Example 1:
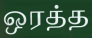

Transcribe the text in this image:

ஒரத்த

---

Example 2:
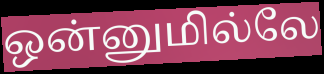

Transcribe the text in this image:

ஒன்னுமில்லே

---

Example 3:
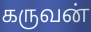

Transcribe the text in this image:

கருவன்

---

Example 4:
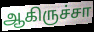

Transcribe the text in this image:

ஆகிருச்சா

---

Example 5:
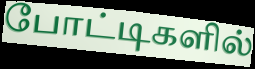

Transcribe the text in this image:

போட்டிகளில்